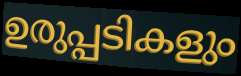
ഉരുപ്പടികളും